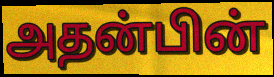
அதன்பின்